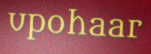
upohaar